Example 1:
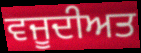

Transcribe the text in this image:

ਵਜੂਦੀਅਤ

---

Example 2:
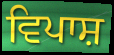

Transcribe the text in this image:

ਵਿਪਾਸ਼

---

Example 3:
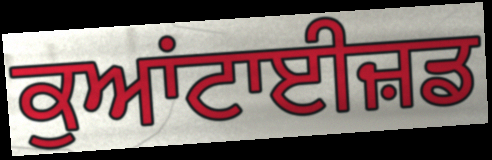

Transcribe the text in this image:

ਕੁਆਂਟਾਈਜ਼ਡ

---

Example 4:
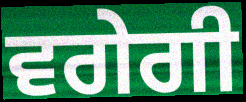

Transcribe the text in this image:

ਵਗੇਗੀ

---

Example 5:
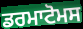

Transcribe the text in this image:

ਡਰਮਾਟੋਮਸ